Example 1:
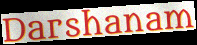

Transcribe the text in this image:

Darshanam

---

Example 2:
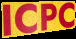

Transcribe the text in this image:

ICPC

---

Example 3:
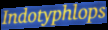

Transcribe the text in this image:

Indotyphlops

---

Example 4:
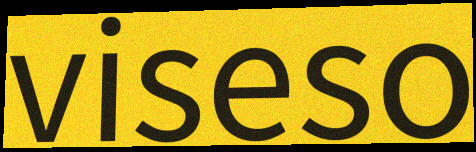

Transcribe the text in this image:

viseso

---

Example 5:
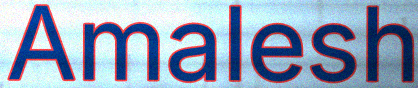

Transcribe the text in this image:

Amalesh